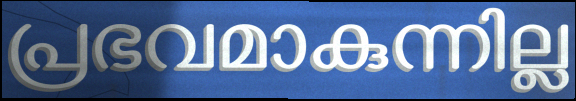
പ്രഭവമാകുന്നില്ല